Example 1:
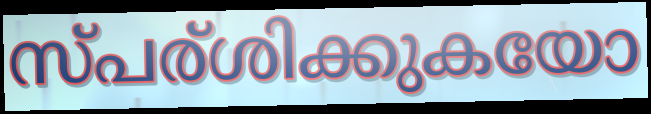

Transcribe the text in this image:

സ്പര്ശിക്കുകയോ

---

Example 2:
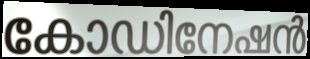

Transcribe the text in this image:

കോഡിനേഷൻ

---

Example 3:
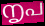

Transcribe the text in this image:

നൃപ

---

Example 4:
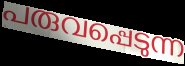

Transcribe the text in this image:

പരുവപ്പെടുന്ന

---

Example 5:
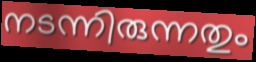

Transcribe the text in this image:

നടന്നിരുന്നതും